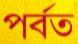
পর্বত